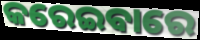
କରେଇବାରେ